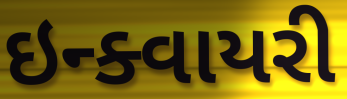
ઇન્ક્વાયરી